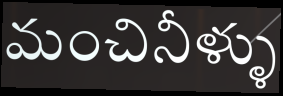
మంచినీళ్ళు